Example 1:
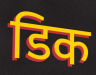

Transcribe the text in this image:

डिक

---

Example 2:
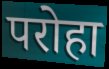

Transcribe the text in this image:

परोहा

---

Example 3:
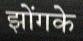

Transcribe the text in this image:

झोंगके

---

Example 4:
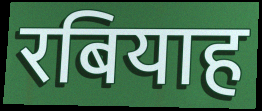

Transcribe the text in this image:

रबियाह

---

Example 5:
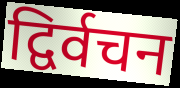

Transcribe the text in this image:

द्विर्वचन